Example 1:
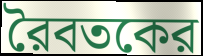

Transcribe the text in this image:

রৈবতকের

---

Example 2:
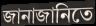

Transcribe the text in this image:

জানাজানিতে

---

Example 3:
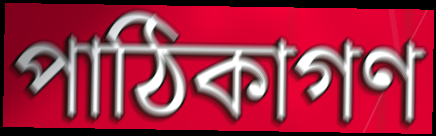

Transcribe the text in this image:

পাঠিকাগণ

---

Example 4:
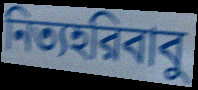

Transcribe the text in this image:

নিত্যহরিবাবু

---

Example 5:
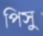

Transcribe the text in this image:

পিসু